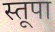
स्तूपा